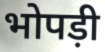
भोपड़ी